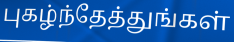
புகழ்ந்தேத்துங்கள்